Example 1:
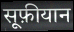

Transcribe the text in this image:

सूफ़ीयान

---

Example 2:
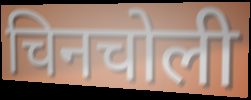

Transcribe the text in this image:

चिनचोली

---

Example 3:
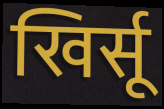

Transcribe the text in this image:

खिर्सू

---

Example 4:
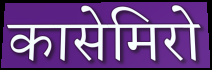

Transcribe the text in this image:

कासेमिरो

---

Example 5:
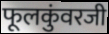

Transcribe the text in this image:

फूलकुंवरजी